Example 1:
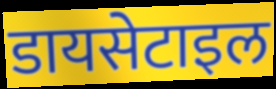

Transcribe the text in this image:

डायसेटाइल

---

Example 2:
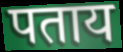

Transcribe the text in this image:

पताय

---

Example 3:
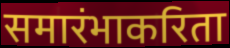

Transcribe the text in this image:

समारंभाकरिता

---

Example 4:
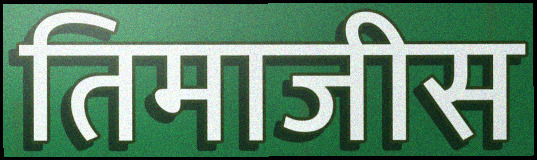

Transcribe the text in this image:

तिमाजीस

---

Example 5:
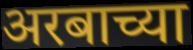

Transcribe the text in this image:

अरबाच्या